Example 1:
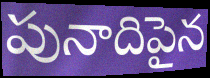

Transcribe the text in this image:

పునాదిపైన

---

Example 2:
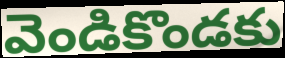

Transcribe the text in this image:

వెండికొండకు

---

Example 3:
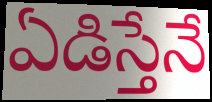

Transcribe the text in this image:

ఏడిస్తేనే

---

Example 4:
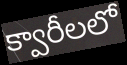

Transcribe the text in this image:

క్వారీలలో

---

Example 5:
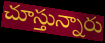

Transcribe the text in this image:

చూస్తున్నారు